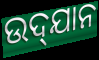
ଉଦ୍‌ଯାନ